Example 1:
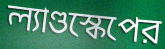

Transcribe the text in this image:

ল্যাণ্ডস্কেপের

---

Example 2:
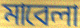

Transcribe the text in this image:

মাবেলা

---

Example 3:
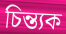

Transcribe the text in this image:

চিন্ত্যক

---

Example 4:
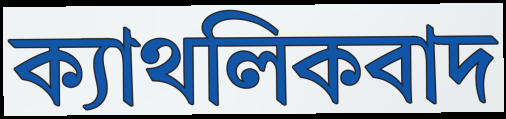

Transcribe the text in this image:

ক্যাথলিকবাদ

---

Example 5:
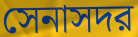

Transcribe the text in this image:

সেনাসদর